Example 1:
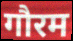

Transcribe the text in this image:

गौरम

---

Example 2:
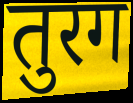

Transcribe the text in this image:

तुरग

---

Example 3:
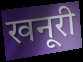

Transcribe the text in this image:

खनूरी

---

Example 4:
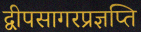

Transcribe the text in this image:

द्वीपसागरप्रज्ञप्ति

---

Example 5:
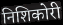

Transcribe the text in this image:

निशिकोरी